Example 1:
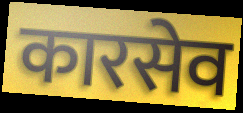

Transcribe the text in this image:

कारसेव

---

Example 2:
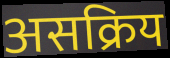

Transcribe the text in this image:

असक्रिय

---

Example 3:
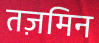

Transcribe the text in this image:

तज़मिन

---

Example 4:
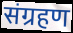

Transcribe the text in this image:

संग्रहण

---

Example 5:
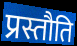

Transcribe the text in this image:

प्रस्तौति